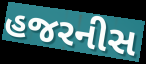
હજરનીસ